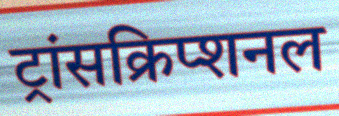
ट्रांसक्रिप्शनल